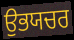
ਉਭਯਚਰ